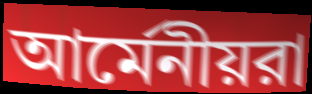
আর্মেনীয়রা